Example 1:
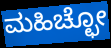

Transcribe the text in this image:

ಮಹಿಚ್ಛೋ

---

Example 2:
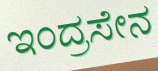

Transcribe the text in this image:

ಇಂದ್ರಸೇನ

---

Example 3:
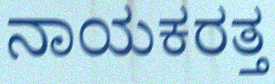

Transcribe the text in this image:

ನಾಯಕರತ್ತ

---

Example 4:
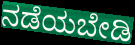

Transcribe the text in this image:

ನಡೆಯಬೇಡಿ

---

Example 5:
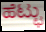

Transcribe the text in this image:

ಹೆಟ್ಟು